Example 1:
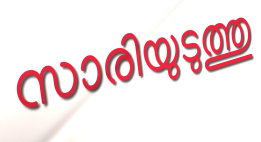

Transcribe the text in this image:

സാരിയുടുത്തു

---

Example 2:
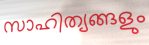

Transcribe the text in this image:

സാഹിത്യങ്ങളും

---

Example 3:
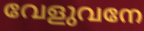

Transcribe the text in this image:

വേളുവനേ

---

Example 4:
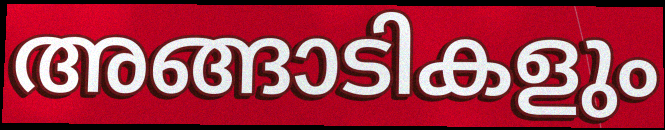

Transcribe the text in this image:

അങ്ങാടികളും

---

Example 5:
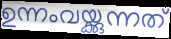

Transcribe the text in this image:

ഉന്നംവയ്ക്കുന്നത്